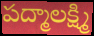
పద్మాలక్ష్మి